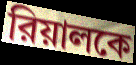
রিয়ালকে